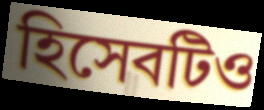
হিসেবটিও